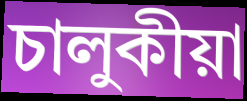
চালুকীয়া